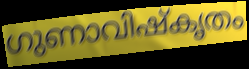
ഗുണാവിഷ്കൃതം